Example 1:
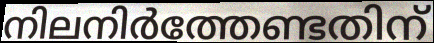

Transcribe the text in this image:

നിലനിർത്തേണ്ടതിന്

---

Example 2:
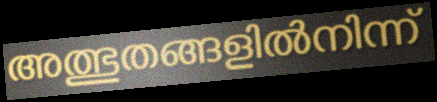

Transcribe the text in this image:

അത്ഭുതങ്ങളിൽനിന്ന്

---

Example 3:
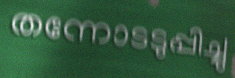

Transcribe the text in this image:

തന്നോടടുപ്പിച്ചു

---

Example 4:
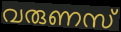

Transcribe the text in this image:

വരുണസ്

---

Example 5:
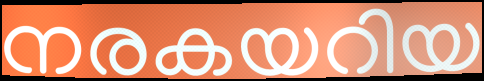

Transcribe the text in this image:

നരകയറിയ